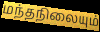
மந்தநிலையும்